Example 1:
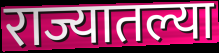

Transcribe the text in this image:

राज्यातल्या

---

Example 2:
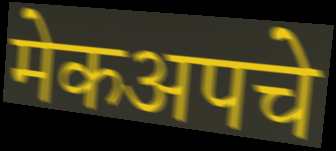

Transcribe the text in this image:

मेकअपचे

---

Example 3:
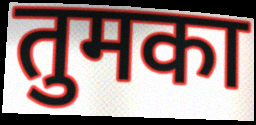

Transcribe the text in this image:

तुमका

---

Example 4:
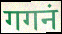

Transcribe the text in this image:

गगनं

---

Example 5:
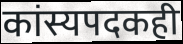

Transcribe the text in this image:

कांस्यपदकही